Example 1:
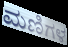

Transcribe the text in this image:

ಮಣಿಗಳ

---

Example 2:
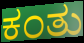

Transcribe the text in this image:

ಕಂತು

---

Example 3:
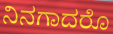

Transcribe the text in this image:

ನಿನಗಾದರೊ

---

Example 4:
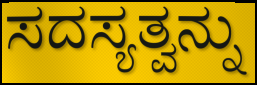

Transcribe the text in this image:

ಸದಸ್ಯತ್ವನ್ನು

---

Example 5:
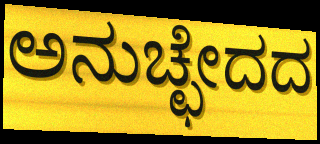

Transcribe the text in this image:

ಅನುಚ್ಛೇದದ